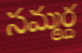
సమ్మర్ద